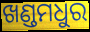
ଖଣ୍ଡମଧୁର